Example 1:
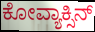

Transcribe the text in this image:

ಕೋವ್ಯಾಕ್ಸಿನ್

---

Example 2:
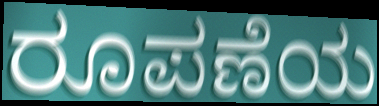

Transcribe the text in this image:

ರೂಪಣೆಯ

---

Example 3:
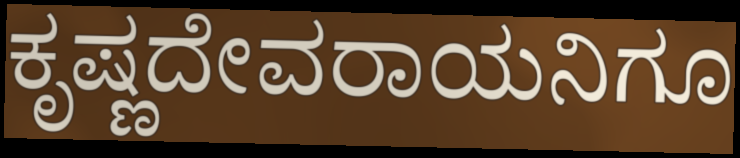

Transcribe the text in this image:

ಕೃಷ್ಣದೇವರಾಯನಿಗೂ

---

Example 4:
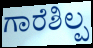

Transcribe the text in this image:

ಗಾರೆಶಿಲ್ಪ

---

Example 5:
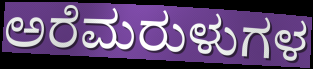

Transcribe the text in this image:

ಅರೆಮರುಳುಗಳ